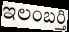
ఇలంబర్తి